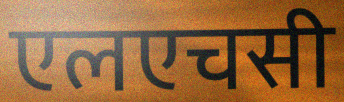
एलएचसी